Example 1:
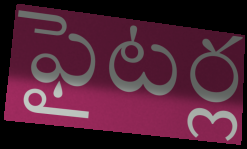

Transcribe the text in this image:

ఫైటర్ల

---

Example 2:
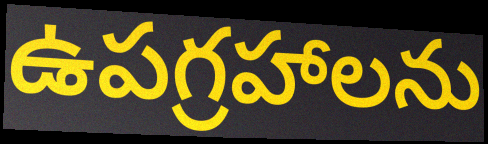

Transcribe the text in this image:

ఉపగ్రహాలను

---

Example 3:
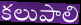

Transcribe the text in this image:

కలుపాలి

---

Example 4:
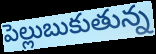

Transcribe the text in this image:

పెల్లుబుకుతున్న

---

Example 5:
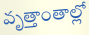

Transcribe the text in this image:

వృత్తాంతాల్లో